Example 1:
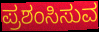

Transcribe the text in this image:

ಪ್ರಶಂಸಿಸುವ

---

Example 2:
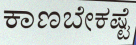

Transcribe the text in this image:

ಕಾಣಬೇಕಷ್ಟೆ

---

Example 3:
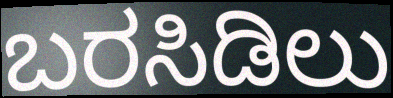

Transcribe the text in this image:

ಬರಸಿಡಿಲು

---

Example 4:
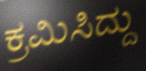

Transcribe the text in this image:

ಕ್ರಮಿಸಿದ್ದು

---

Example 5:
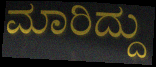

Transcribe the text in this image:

ಮಾರಿದ್ದು